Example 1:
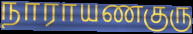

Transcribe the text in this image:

நாராயணகுரு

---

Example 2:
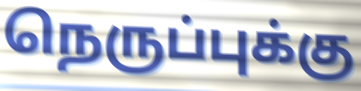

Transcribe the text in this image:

நெருப்புக்கு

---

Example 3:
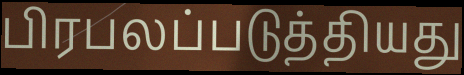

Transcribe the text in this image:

பிரபலப்படுத்தியது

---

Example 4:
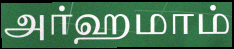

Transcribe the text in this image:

அர்ஹமாம்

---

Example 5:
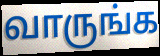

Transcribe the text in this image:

வாருங்க